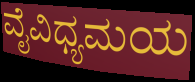
ವೈವಿಧ್ಯಮಯ